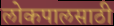
लोकपालसाठी